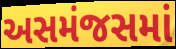
અસમંજસમાં